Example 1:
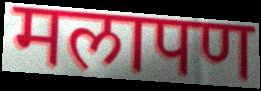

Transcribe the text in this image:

मलापण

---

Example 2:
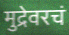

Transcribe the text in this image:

मुद्रेवरचं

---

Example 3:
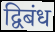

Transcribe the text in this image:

द्विबंध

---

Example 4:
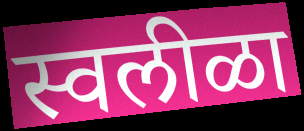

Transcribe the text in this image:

स्वलीळा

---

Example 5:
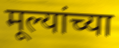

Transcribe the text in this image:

मूल्यांच्या